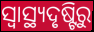
ସ୍ୱାସ୍ଥ୍ୟଦୃଷ୍ଟିରୁ